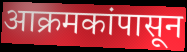
आक्रमकांपासून